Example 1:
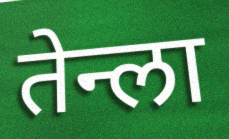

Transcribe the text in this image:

तेन्ला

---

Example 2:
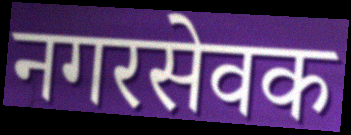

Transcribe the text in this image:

नगरसेवक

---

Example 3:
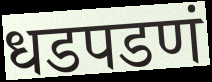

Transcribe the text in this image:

धडपडणं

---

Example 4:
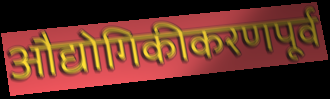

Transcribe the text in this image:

औद्योगिकीकरणपूर्व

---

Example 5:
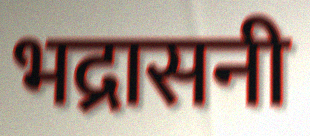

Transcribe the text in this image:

भद्रासनी